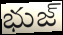
భుజ్